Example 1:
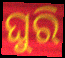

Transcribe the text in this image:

ଘୁରି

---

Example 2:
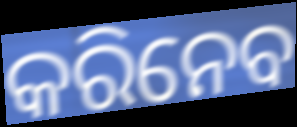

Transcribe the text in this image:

କରିନେବ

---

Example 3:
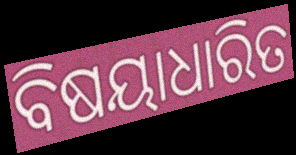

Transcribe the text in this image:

ବିଷୟାଧାରିତ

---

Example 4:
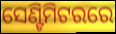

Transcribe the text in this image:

ସେଣ୍ଟିମିଟରରେ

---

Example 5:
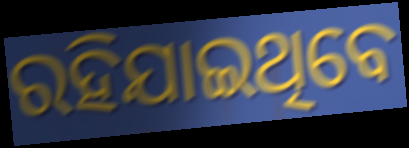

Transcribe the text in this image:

ରହିଯାଇଥିବେ